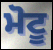
ਮੋਟੂ